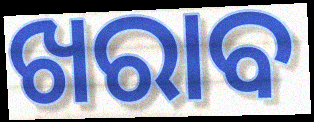
ଖରାବ